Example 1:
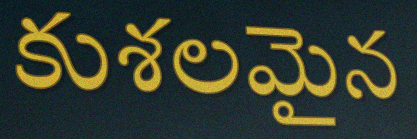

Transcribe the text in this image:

కుశలమైన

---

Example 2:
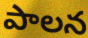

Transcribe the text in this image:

పాలన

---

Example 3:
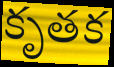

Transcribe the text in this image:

కృతక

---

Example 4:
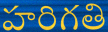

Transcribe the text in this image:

హరిగతి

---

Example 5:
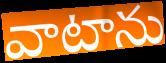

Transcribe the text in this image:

వాటాను